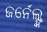
ଜର୍ନେଲ୍ଙ୍କ